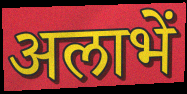
अलाभें